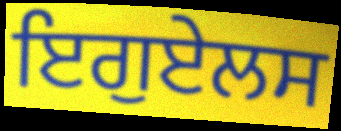
ਇਗੁਏਲਸ